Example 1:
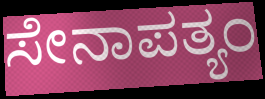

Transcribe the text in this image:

ಸೇನಾಪತ್ಯಂ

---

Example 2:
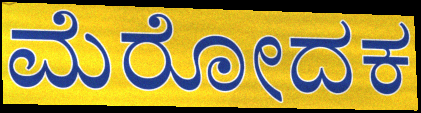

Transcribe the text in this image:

ಮೆರೋದಕ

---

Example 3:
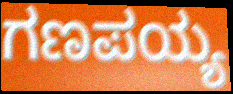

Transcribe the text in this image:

ಗಣಪಯ್ಯ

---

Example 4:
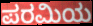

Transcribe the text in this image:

ಪರಮಿಯ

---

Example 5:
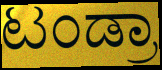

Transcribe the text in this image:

ಟಂಡ್ರಾ